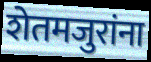
शेतमजुरांना